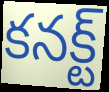
కనక్ట్